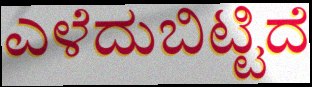
ಎಳೆದುಬಿಟ್ಟಿದೆ